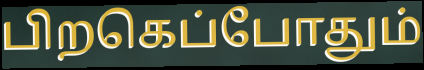
பிறகெப்போதும்